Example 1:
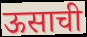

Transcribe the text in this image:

ऊसाची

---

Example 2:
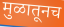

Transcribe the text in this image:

मुळातूनच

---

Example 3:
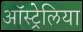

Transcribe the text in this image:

ऑस्ट्रेलिया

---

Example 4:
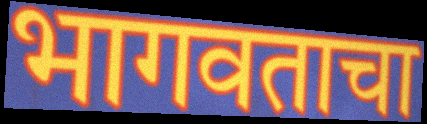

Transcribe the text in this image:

भागवताचा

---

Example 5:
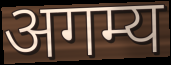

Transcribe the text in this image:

अगम्य